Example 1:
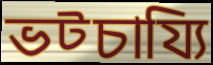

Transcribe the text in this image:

ভট্চায্যি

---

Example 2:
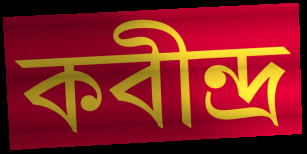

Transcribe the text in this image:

কবীন্দ্র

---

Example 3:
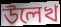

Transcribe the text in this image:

উলেখ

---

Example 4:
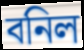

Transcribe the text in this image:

বনিল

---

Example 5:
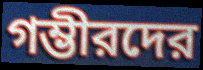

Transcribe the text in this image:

গম্ভীরদের